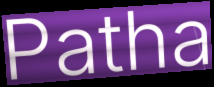
Patha